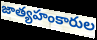
జాత్యహంకారుల